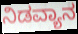
ನಿಡವ್ಯಾನ